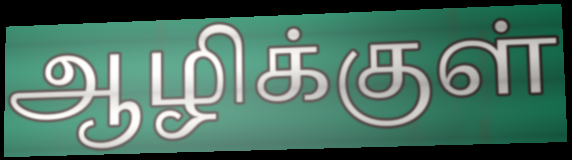
ஆழிக்குள்